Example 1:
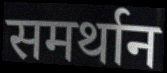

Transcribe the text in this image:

समर्थान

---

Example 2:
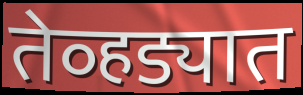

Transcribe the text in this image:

तेव्हड्यात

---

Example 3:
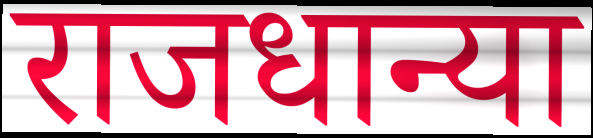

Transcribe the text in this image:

राजधान्या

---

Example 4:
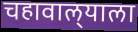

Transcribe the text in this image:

चहावाल्याला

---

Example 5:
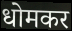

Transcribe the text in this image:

धोमकर